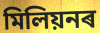
মিলিয়নৰ